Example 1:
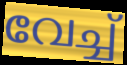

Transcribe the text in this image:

വേച്ച്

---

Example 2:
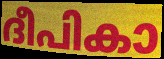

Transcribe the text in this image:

ദീപികാ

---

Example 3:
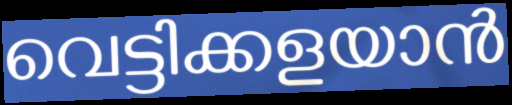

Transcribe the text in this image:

വെട്ടിക്കളയാൻ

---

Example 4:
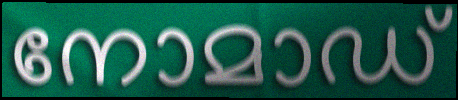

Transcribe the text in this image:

നോമാഡ്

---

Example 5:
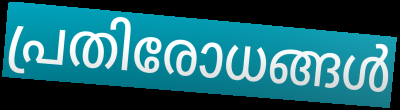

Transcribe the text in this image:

പ്രതിരോധങ്ങൾ